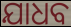
ଯାଧବ